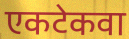
एकटेकवा